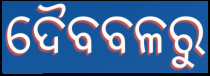
ଦୈବବଳରୁ